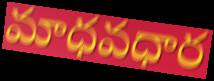
మాధవధార